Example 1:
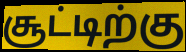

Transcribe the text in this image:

சூட்டிற்கு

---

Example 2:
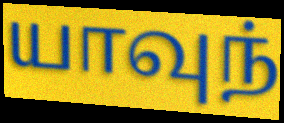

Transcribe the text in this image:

யாவுந்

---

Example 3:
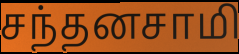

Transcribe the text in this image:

சந்தனசாமி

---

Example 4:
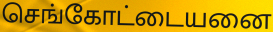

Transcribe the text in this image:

செங்கோட்டையனை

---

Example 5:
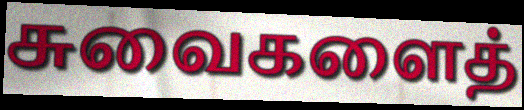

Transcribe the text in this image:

சுவைகளைத்